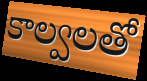
కాల్వలతో